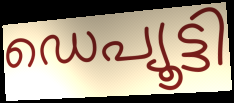
ഡെപ്യൂട്ടി